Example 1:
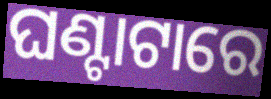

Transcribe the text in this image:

ଘଣ୍ଟାଟାରେ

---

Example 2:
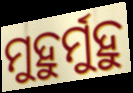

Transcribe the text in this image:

ମୁହୁର୍ମୁହୁ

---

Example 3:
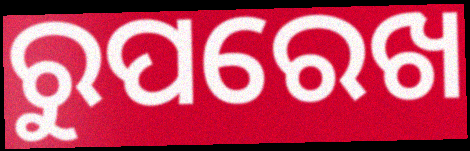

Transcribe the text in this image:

ରୁପରେଖ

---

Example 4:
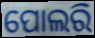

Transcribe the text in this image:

ପୋଲରି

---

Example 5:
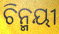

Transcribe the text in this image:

ଚିନ୍ମୟୀ